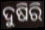
ଦୁଷିରି